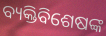
ବ୍ୟକ୍ତିବିଶେଷଙ୍କ